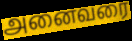
அனைவரை